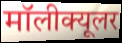
मॉलीक्यूलर